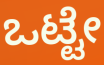
ಒಟ್ಟೇ